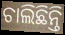
ଚାଲିଛିନ୍ତି